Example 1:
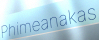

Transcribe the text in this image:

Phimeanakas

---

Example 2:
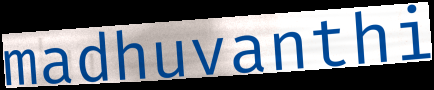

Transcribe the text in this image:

madhuvanthi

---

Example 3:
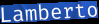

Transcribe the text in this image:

Lamberto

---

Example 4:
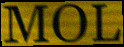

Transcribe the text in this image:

MOL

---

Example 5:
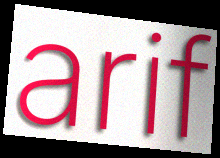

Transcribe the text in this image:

arif